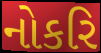
નોકરિ